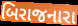
બિરાજનારા